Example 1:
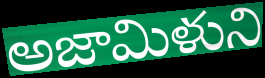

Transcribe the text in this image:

అజామిళుని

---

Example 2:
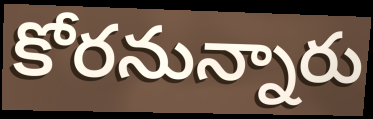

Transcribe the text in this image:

కోరనున్నారు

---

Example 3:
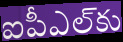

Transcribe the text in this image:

ఐపీఎల్‌కు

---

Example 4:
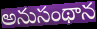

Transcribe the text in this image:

అనుసంథాన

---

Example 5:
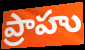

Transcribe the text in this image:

ప్రాహు